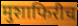
मुशाफिरीच